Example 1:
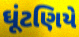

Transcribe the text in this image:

ઘૂંટણિયે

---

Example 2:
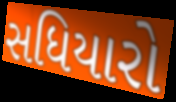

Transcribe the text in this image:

સધિયારો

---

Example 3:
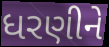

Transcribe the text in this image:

ધરણીને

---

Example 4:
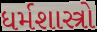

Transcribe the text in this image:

ધર્મશાસ્ત્રો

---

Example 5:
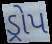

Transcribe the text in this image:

ડ્રોપ